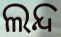
ଲନ୍ଦ